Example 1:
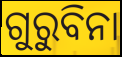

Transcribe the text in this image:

ଗୁରୁବିନା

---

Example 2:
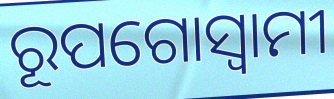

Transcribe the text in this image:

ରୂପଗୋସ୍ୱାମୀ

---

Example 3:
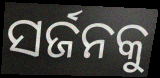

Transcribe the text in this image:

ସର୍ଜନକୁ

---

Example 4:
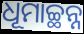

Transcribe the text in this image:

ଧୂମାଚ୍ଛନ୍ନ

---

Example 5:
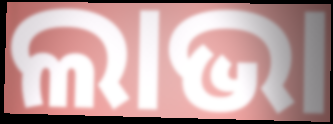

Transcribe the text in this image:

ଲାଭା